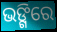
ଭଙ୍ଗିରେ